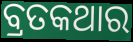
ବ୍ରତକଥାର